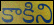
కాకిని